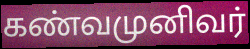
கண்வமுனிவர்